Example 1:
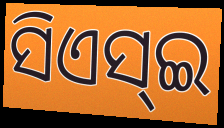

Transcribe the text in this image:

ସିଏସ୍ଇ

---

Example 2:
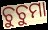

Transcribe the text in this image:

ଚୁଚୁମା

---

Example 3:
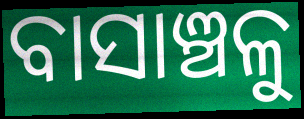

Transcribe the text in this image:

ବାସାଞ୍ଚଳୁ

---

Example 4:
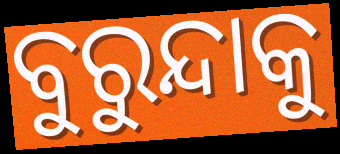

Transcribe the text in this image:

ବୁରୁନ୍ଦାକୁ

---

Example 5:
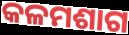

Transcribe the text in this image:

କଳମଶାଗ